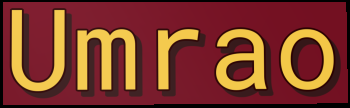
Umrao